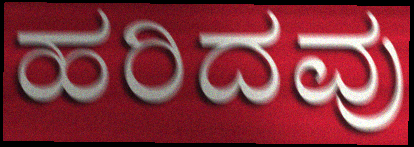
ಹರಿದವು